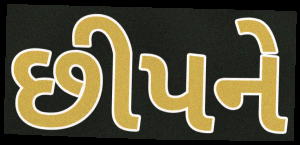
છીપને